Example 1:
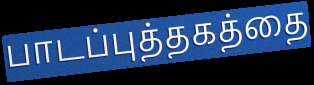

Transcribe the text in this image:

பாடப்புத்தகத்தை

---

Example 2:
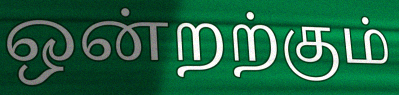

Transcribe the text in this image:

ஒன்றற்கும்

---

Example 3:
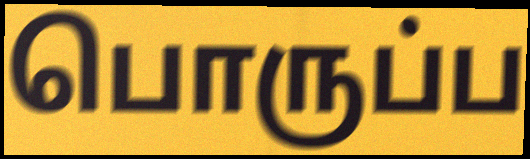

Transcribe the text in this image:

பொருப்ப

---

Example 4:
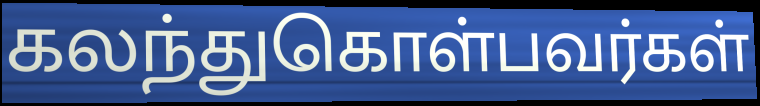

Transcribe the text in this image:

கலந்துகொள்பவர்கள்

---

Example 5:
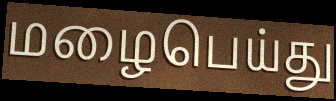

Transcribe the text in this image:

மழைபெய்து